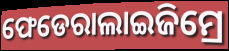
ଫେଡେରାଲାଇଜିମ୍ରେ